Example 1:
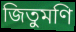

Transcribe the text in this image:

জিতুমণি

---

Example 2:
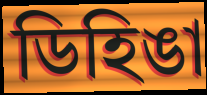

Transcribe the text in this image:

ডিহিঙা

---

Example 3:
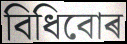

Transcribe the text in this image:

বিধিবোৰ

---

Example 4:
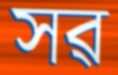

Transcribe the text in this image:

সৱ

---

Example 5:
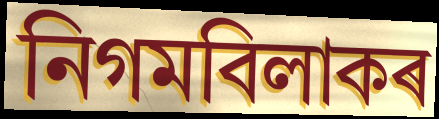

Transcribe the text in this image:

নিগমবিলাকৰ